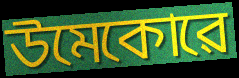
উমেকোৱে